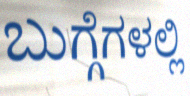
ಬುಗ್ಗೆಗಳಲ್ಲಿ